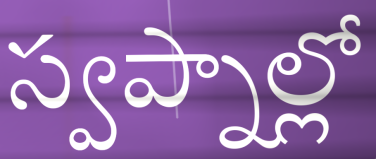
స్వప్నాల్లో